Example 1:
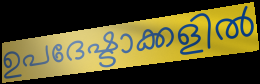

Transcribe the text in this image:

ഉപദേഷ്ടാക്കളിൽ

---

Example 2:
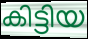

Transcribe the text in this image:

കിട്ടിയ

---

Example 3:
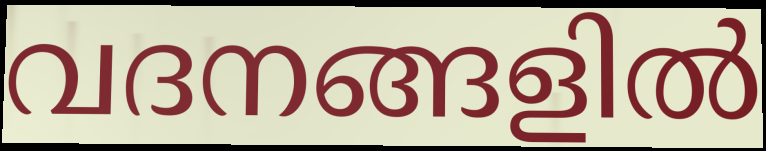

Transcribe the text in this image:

വദനങ്ങളിൽ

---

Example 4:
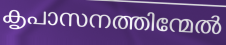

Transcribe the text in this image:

കൃപാസനത്തിന്മേൽ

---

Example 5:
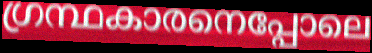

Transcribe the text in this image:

ഗ്രന്ഥകാരനെപ്പോലെ